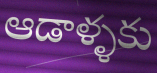
ఆడాళ్ళకు